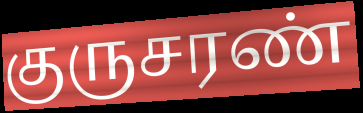
குருசரண்